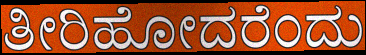
ತೀರಿಹೋದರೆಂದು